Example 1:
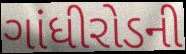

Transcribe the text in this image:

ગાંધીરોડની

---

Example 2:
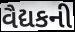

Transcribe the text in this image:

વૈદ્યકની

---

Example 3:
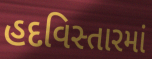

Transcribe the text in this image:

હદવિસ્તારમાં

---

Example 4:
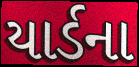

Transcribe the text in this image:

યાર્ડના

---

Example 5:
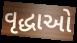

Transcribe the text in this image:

વૃદ્ધાઓ